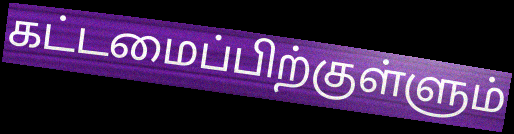
கட்டமைப்பிற்குள்ளும்